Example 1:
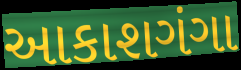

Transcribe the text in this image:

આકાશગંગા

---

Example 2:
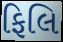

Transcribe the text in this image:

ફિલિ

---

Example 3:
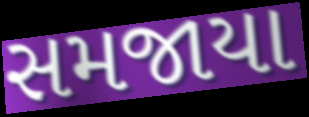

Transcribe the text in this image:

સમજાયા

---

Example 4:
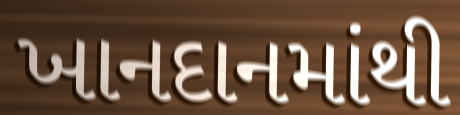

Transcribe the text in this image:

ખાનદાનમાંથી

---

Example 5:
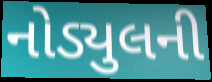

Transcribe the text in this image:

નોડ્યુલની